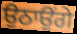
ਉਠਾਉਂਗੇ